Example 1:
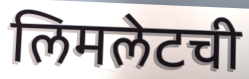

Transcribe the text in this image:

लिमलेटची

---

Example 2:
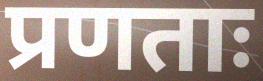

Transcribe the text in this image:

प्रणताः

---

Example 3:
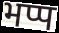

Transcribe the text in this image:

भप्प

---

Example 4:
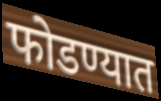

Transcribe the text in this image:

फोडण्यात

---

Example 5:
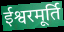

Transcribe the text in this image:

ईश्वरमूर्ति